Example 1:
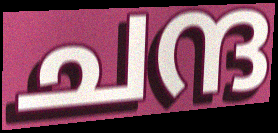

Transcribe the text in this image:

ചന്ദ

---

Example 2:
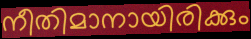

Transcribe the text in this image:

നീതിമാനായിരിക്കും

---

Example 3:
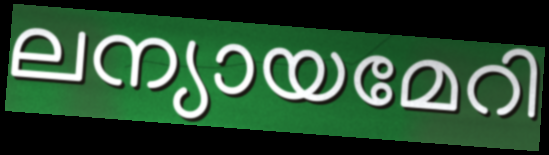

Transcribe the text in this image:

ലന്യായമേറി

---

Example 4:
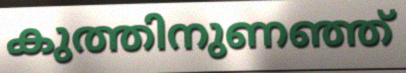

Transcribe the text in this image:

കുത്തിനുണഞ്ഞ്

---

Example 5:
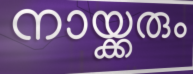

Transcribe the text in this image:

നായ്ക്കരും